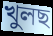
খুলছ